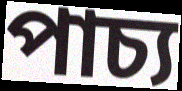
পাচ্য